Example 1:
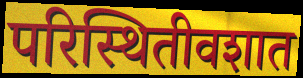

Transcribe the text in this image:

परिस्थितीवशात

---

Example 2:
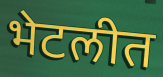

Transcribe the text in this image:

भेटलीत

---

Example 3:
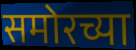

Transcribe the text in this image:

समोरच्या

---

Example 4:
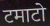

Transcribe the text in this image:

टमाटो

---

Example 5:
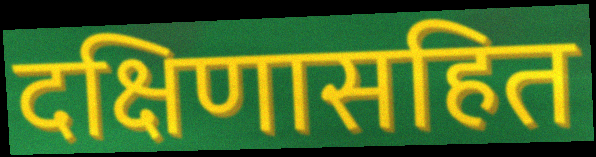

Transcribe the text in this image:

दक्षिणासहित